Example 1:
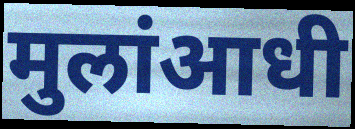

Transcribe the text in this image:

मुलांआधी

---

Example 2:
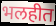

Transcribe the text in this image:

भलहीत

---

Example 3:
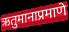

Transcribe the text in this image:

ऋतुमानाप्रमाणे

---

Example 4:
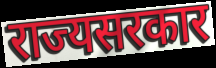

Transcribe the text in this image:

राज्यसरकार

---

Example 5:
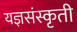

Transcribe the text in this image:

यज्ञसंस्कृती